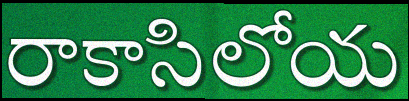
రాకాసిలోయ